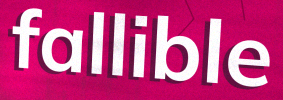
fallible